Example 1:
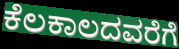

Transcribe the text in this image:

ಕೆಲಕಾಲದವರೆಗೆ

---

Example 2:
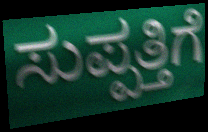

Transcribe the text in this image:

ಸುಪ್ಪತ್ತಿಗೆ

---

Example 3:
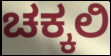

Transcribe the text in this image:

ಚಕ್ಕಲಿ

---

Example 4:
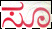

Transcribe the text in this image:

ಸೂ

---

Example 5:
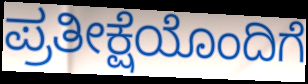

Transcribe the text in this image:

ಪ್ರತೀಕ್ಷೆಯೊಂದಿಗೆ